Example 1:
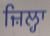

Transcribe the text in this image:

ਜ਼ਿਲ੍ਹ੍ਹਾ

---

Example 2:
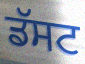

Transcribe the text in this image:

ਡੱਸਟ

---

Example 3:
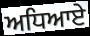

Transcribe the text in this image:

ਅਧਿਆਏ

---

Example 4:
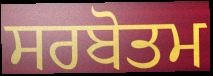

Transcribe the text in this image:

ਸਰਬੋਤਮ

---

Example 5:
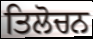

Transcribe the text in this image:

ਤਿਲੋਚਨ